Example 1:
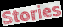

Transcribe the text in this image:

Stories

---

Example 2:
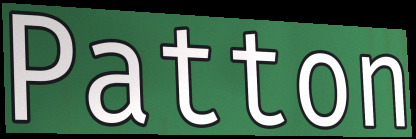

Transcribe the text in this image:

Patton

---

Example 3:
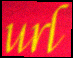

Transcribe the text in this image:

url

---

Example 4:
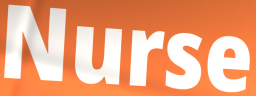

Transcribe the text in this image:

Nurse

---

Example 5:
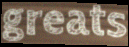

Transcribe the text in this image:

greats